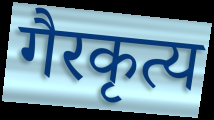
गैरकृत्य